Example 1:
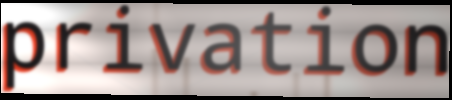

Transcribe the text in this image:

privation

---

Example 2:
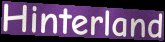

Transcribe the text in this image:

Hinterland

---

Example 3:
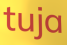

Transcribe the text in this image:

tuja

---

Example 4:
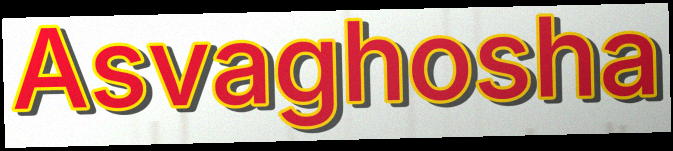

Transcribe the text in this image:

Asvaghosha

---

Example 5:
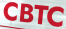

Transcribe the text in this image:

CBTC